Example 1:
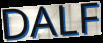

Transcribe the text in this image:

DALF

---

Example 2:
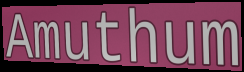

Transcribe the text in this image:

Amuthum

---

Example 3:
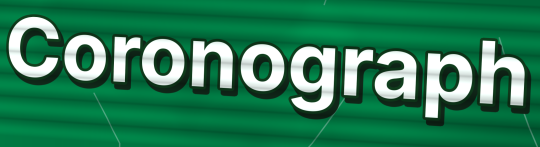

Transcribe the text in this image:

Coronograph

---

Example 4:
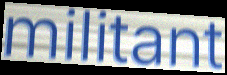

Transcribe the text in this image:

militant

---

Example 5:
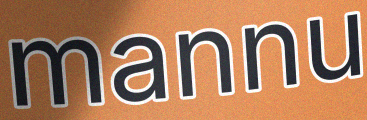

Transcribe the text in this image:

mannu